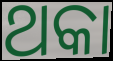
ଥକା